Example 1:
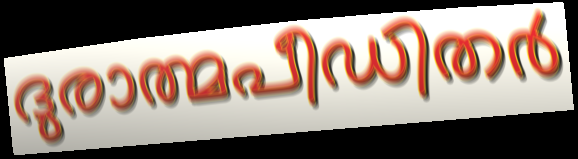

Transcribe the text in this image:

ദുരാത്മപീഡിതർ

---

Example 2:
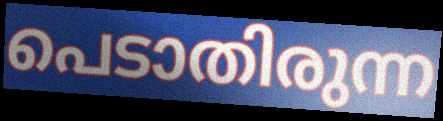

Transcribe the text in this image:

പെടാതിരുന്ന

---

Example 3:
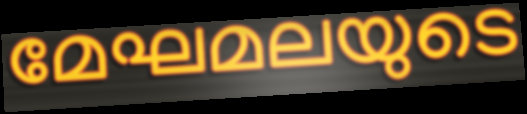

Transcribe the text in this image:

മേഘമലയുടെ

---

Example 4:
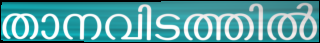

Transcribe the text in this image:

താനവിടത്തിൽ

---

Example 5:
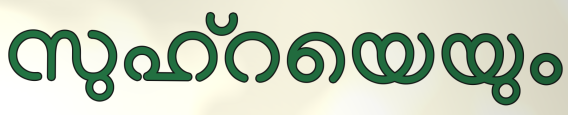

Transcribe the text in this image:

സുഹ്റയെയും